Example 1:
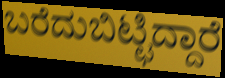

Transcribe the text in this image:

ಬರೆದುಬಿಟ್ಟಿದ್ದಾರೆ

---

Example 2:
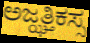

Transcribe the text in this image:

ಅಜ್ಝತ್ತಿಕಸ್ಸ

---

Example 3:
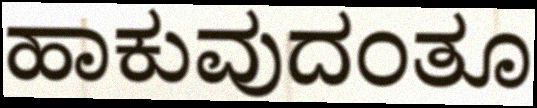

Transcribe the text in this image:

ಹಾಕುವುದಂತೂ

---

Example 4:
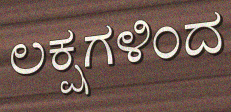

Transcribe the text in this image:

ಲಕ್ಷಗಳಿಂದ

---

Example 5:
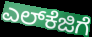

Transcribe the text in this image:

ಎಲ್‌ಕೆಜಿಗೆ